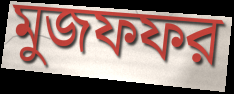
মুজফফর